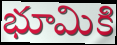
భూమికి